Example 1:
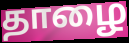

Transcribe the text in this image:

தாழை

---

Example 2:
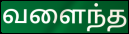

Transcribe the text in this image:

வளைந்த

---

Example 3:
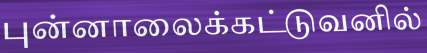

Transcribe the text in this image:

புன்னாலைக்கட்டுவனில்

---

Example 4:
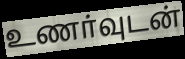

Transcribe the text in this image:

உணர்வுடன்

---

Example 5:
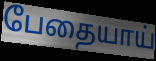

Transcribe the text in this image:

பேதையாய்